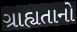
ગ્રાહ્યતાનો